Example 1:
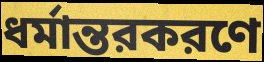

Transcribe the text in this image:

ধর্মান্তরকরণে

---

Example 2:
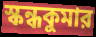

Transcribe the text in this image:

স্কন্ধকুমার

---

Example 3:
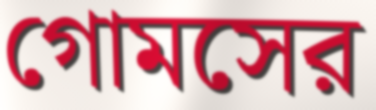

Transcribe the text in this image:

গোমসের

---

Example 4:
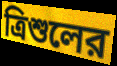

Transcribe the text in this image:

ত্রিশুলের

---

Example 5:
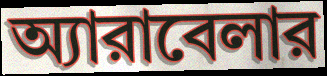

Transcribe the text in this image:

অ্যারাবেলার